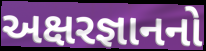
અક્ષરજ્ઞાનનો